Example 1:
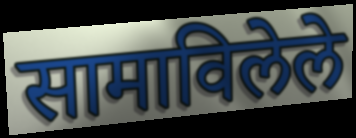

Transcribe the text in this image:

सामाविलेले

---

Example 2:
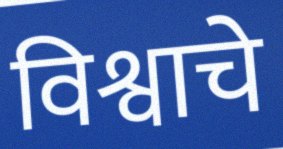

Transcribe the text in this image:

विश्वाचे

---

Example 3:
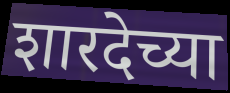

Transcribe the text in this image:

शारदेच्या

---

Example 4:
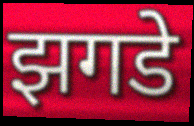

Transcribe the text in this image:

झगडे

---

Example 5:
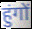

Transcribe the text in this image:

हुंगों